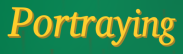
Portraying